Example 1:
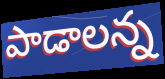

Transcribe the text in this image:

పాడాలన్న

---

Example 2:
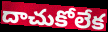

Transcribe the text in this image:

దాచుకోలేక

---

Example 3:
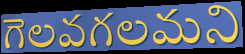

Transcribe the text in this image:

గెలవగలమని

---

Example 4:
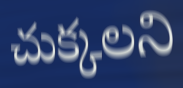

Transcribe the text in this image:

చుక్కలని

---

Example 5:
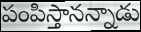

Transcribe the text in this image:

పంపిస్తానన్నాడు